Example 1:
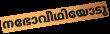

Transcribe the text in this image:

നഭോവീഥിയോടു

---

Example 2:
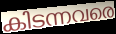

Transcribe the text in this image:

കിടന്നവരെ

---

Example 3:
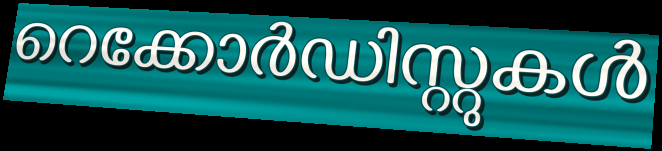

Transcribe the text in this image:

റെക്കോർഡിസ്റ്റുകൾ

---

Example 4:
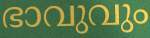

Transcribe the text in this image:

ഭാവുവും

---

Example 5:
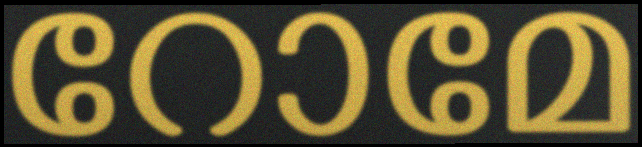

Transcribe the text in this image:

റോമേ